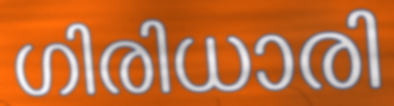
ഗിരിധാരി